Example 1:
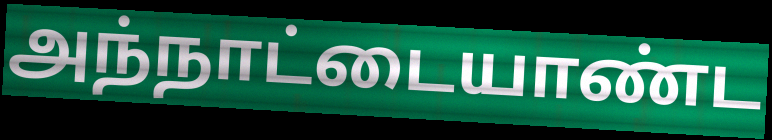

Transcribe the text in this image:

அந்நாட்டையாண்ட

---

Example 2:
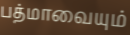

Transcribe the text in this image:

பத்மாவையும்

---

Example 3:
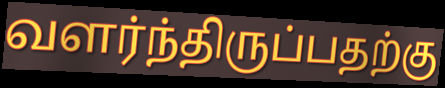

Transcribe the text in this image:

வளர்ந்திருப்பதற்கு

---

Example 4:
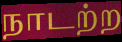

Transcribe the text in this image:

நாடற்ற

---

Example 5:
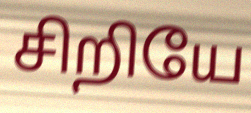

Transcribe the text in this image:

சிறியே